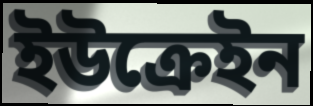
ইউক্ৰেইন